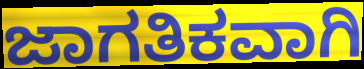
ಜಾಗತಿಕವಾಗಿ